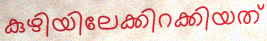
കുഴിയിലേക്കിറക്കിയത്